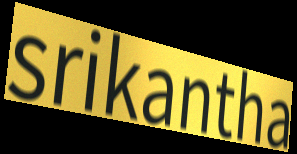
srikantha